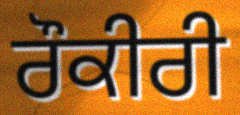
ਰੌਕੀਰੀ